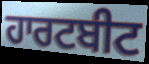
ਹਾਰਟਬੀਟ